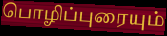
பொழிப்புரையும்